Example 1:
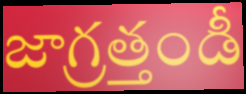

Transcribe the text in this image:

జాగ్రత్తండీ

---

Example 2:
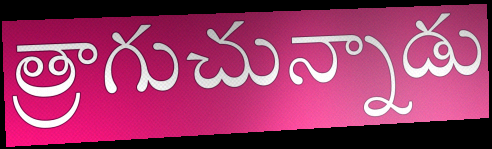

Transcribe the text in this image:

త్రాగుచున్నాడు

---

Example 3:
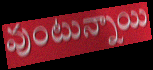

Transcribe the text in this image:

వుంటున్నాయి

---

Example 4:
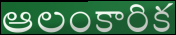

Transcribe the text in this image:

ఆలంకారిక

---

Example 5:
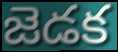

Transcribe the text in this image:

జెడక